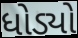
ધોડ્યો